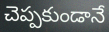
చెప్పకుండానే